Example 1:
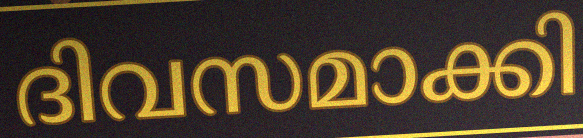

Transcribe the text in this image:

ദിവസമാക്കി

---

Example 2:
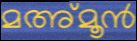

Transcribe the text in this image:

മഅ്മൂൻ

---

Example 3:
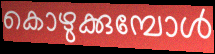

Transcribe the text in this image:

കൊഴുക്കുമ്പോൾ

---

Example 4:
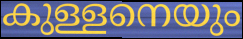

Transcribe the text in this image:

കുള്ളനെയും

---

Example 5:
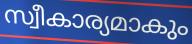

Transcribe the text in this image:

സ്വീകാര്യമാകും